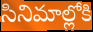
సినిమాల్లోకి